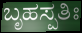
ಬೃಹಸ್ಪತಿಃ